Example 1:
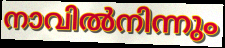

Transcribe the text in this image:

നാവിൽനിന്നും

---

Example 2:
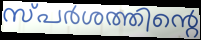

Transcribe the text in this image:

സ്പർശത്തിന്റെ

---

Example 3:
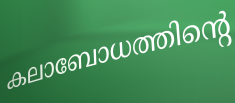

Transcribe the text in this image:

കലാബോധത്തിന്റെ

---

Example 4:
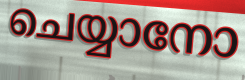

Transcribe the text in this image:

ചെയ്യാനോ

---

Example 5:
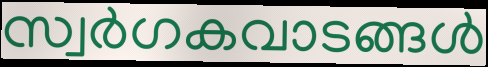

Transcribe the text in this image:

സ്വർഗകവാടങ്ങൾ